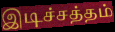
இடிச்சத்தம்